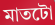
মাতটো